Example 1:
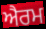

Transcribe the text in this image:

ਐਰਮ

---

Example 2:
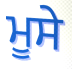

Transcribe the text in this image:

ਮੂਸੇ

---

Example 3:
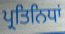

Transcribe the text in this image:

ਪ੍ਰਤਿਨਿਧਾਂ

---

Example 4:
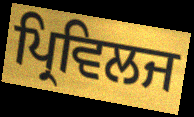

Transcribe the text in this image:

ਪ੍ਰਿਵਿਲਜ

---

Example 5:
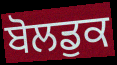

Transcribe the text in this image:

ਬੋਲਡੁਕ